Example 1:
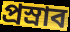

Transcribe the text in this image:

প্রস্রাব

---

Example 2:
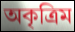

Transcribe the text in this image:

অকৃত্রিম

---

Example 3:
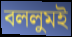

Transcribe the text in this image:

বললুমই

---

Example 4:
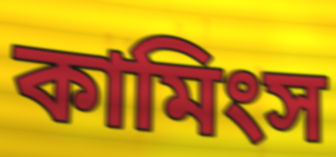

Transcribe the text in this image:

কামিংস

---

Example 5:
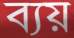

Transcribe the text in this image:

ব্যয়